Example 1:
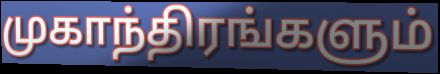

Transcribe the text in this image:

முகாந்திரங்களும்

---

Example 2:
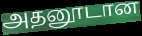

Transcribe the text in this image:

அதனூடான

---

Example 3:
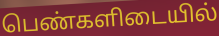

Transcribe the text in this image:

பெண்களிடையில்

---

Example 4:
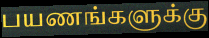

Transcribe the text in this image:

பயணங்களுக்கு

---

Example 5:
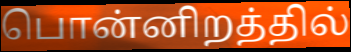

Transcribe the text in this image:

பொன்னிறத்தில்